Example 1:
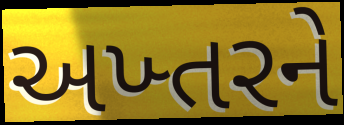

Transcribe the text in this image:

અખ્તરને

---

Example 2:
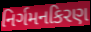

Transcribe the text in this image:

નિર્ગમનકિરણ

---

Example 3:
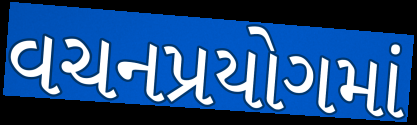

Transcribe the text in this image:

વચનપ્રયોગમાં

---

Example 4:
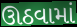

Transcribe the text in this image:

ઊઠવામાં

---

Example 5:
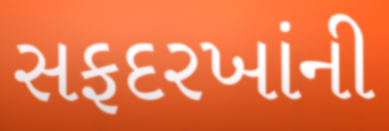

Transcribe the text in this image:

સફદરખાંની